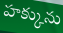
హక్కును